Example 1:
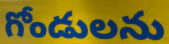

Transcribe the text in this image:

గోండులను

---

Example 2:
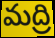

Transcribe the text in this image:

మద్రి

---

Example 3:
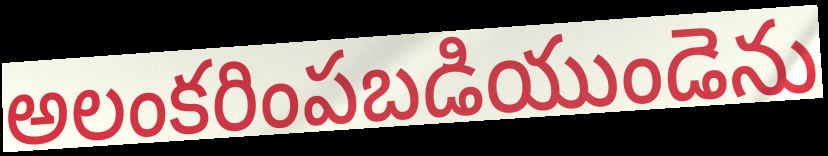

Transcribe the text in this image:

అలంకరింపబడియుండెను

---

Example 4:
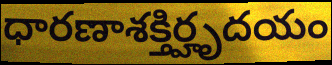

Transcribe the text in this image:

ధారణాశక్తిర్హృదయం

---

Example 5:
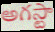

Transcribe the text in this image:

అగస్టా